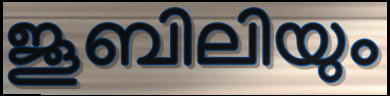
ജൂബിലിയും